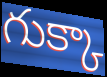
గుక్కా